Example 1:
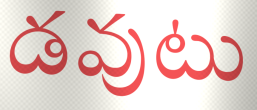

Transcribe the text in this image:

డవుటు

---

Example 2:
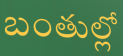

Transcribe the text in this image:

బంతుల్లో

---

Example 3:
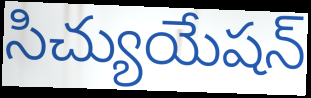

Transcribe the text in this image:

సిచ్యుయేషన్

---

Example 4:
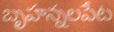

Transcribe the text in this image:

బృహన్నలపేట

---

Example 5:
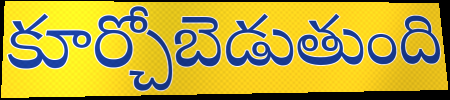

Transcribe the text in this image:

కూర్చోబెడుతుంది